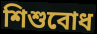
শিশুবোধ